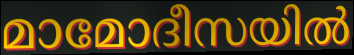
മാമോദീസയിൽ